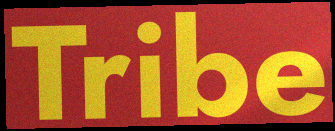
Tribe